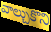
వాల్చుకొని